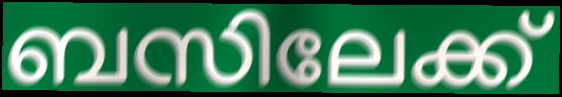
ബസിലേക്ക്